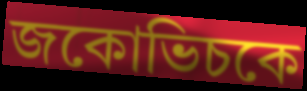
জকোভিচকে